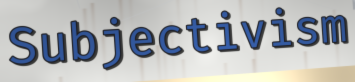
Subjectivism